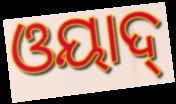
ଓୟାଦ୍